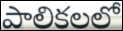
పాలికలలో